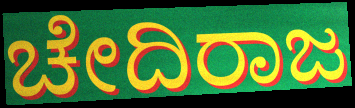
ಚೇದಿರಾಜ